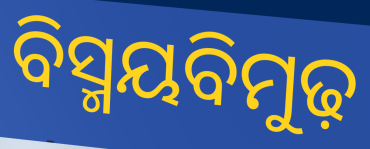
ବିସ୍ମୟବିମୁଢ଼